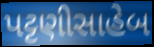
પટ્ટણીસાહેબ